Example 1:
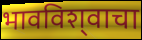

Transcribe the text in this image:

भावविश्वाचा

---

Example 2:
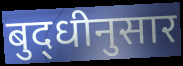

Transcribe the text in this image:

बुद्धीनुसार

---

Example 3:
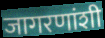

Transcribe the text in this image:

जागरणांशी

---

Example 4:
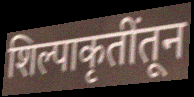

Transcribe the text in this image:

शिल्पाकृतींतून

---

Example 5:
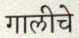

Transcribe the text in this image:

गालीचे